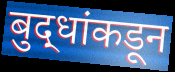
बुद्धांकडून